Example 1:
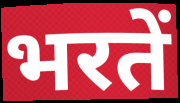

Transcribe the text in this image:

भरतें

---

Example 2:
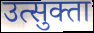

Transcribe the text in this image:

उत्सुक्ता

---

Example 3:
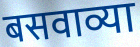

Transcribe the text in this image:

बसवाव्या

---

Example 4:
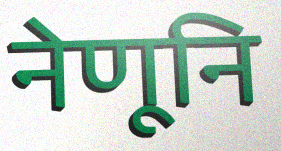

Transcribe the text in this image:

नेणूनि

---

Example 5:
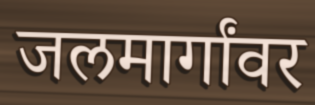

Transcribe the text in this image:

जलमार्गांवर